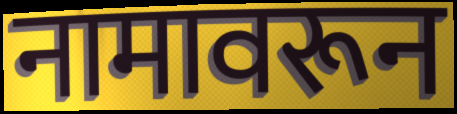
नामावरून